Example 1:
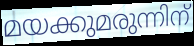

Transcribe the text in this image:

മയക്കുമരുന്നിന്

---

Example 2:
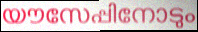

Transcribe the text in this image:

യൗസേപ്പിനോടും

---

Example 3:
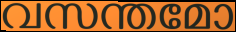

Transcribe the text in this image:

വസന്തമോ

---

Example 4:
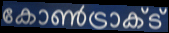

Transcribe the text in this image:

കോൺട്രാക്ട്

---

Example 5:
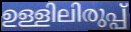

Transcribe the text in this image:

ഉള്ളിലിരുപ്പ്